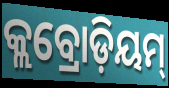
କ୍ଲବ୍ରୋଡ଼ିୟମ୍